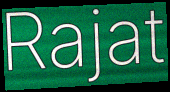
Rajat